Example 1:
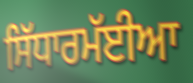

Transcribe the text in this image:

ਸਿੱਧਾਰਮੱਈਆ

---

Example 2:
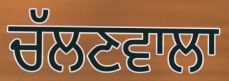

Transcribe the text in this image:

ਚੱਲਣਵਾਲਾ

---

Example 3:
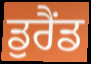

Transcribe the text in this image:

ਡੁਰੈਂਡ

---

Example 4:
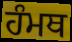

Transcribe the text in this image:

ਹੰਮਥ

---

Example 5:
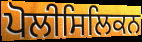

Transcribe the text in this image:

ਪੋਲੀਸਿਲਿਕਨ